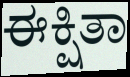
ಈಕ್ಷಿತಾ